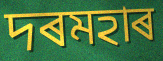
দৰমহাৰ